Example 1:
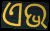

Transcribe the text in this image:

ଏଭ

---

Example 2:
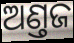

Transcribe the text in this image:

ଅଣ୍ତଜ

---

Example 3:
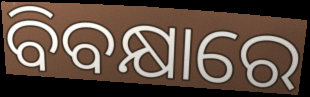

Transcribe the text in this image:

ବିବକ୍ଷାରେ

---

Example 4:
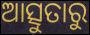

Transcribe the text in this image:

ଆତ୍ସୁତାରୁ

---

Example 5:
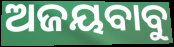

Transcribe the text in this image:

ଅଜୟବାବୁ